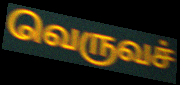
வெருவச்